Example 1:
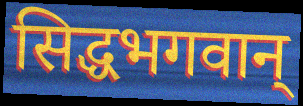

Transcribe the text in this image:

सिद्धभगवान्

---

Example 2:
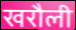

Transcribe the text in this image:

खरौली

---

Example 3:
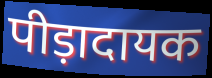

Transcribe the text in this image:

पीड़ादायक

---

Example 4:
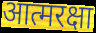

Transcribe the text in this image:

आत्मरक्षा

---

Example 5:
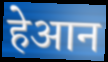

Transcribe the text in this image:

हेआन